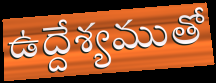
ఉద్దేశ్యముతో